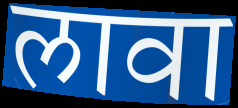
लावा